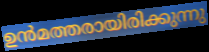
ഉൻമത്തരായിരിക്കുന്നു